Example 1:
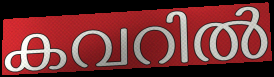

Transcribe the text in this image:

കവറിൽ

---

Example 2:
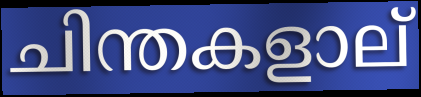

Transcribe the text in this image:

ചിന്തകളാല്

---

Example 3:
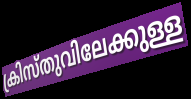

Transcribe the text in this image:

ക്രിസ്തുവിലേക്കുള്ള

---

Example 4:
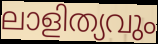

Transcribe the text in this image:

ലാളിത്യവും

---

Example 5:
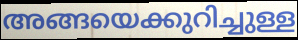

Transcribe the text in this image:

അങ്ങയെക്കുറിച്ചുള്ള